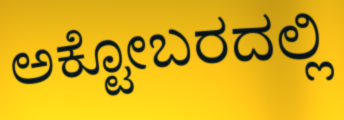
ಅಕ್ಟೋಬರದಲ್ಲಿ